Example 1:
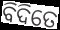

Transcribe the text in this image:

ବିଦିତେ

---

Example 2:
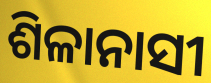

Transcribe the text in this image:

ଶିଳାନାସୀ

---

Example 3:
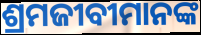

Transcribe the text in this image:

ଶ୍ରମଜୀବୀମାନଙ୍କ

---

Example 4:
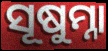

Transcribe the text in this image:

ସୂଷୁମ୍ନା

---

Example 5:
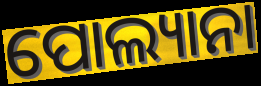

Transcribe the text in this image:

ପୋଲ୍ୟାନା